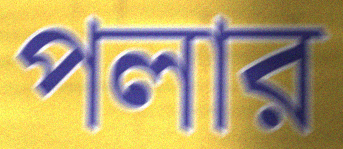
পলার